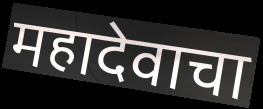
महादेवाचा